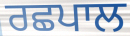
ਰਛਪਾਲ